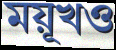
ময়ূখও